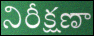
నిరీక్షణా